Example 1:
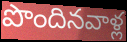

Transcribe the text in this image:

పొందినవాళ్ల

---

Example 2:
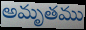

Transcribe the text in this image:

అమృతము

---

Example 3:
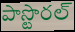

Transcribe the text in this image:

పాస్టొరల్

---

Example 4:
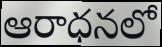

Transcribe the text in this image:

ఆరాధనలో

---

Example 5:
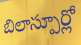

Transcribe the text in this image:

బిలాస్పూర్లో